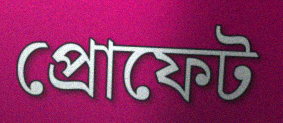
প্রোফেট